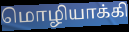
மொழியாக்கி